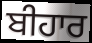
ਬੀਹਾਰ